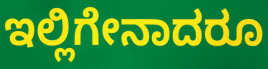
ಇಲ್ಲಿಗೇನಾದರೂ